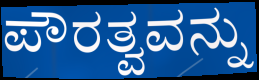
ಪೌರತ್ವವನ್ನು